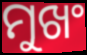
ମୁଖଂ